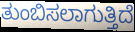
ತುಂಬಿಸಲಾಗುತ್ತಿದೆ